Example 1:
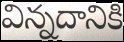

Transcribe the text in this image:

విన్నదానికి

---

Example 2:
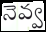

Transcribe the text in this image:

నెవ్వ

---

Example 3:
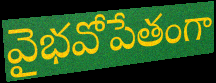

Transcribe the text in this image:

వైభవోపేతంగా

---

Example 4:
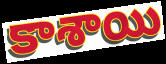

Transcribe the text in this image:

కాశాయి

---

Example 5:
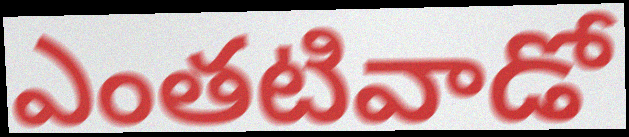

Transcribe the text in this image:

ఎంతటివాడో